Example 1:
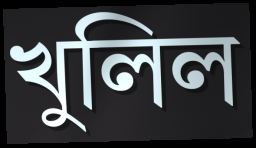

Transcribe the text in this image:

খুলিল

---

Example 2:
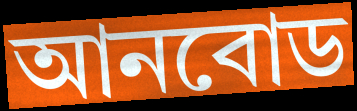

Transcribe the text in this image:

আনবোড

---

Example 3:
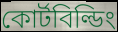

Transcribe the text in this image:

কোর্টবিল্ডিং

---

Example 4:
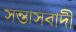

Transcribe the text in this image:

সন্তাসবাদী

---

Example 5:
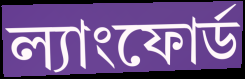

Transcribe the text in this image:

ল্যাংফোর্ড